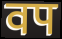
वप